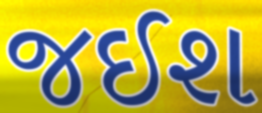
જઈશ